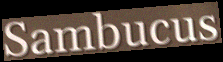
Sambucus